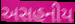
અસહનીય